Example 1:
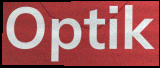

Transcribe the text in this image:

Optik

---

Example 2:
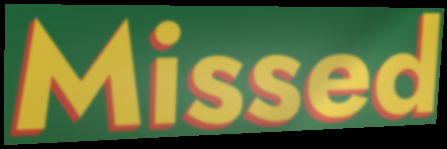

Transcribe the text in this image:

Missed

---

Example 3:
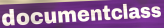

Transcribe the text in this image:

documentclass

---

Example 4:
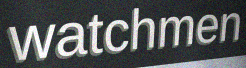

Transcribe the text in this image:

watchmen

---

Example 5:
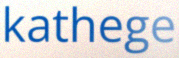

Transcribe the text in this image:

kathege